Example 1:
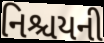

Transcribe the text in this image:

નિશ્ચયની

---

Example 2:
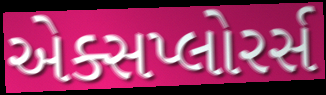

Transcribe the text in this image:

એક્સપ્લોરર્સ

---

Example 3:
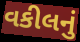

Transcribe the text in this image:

વકીલનું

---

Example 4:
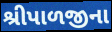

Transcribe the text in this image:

શ્રીપાળજીના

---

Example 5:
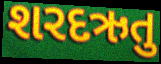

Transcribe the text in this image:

શરદઋતુ